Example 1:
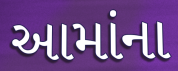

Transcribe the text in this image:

આમાંના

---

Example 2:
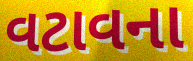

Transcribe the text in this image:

વટાવના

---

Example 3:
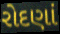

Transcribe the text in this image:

રોદણાં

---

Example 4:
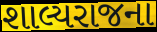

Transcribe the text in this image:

શાલ્યરાજના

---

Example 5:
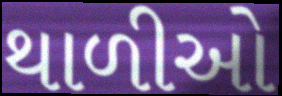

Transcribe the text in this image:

થાળીઓ